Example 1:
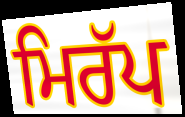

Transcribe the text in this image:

ਮਿਰੱਪ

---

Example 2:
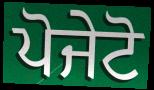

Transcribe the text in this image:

ਪੋਜੇਟੋ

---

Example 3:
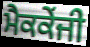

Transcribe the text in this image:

ਮੈਕਕੇਂਜੀ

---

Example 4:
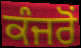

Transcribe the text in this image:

ਕੰਜਰੋਂ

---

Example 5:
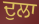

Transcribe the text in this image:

ਦੁਲਾ